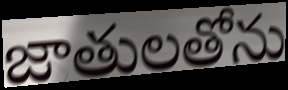
జాతులతోను